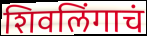
शिवलिंगाचं